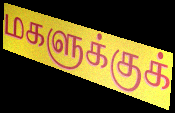
மகளுக்குக்